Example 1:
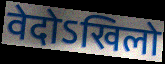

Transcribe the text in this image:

वेदोऽखिलो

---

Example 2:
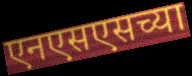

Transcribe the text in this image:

एनएसएसच्या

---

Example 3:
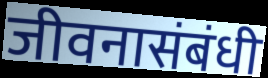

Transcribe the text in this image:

जीवनासंबंधी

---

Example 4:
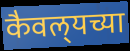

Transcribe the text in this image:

कैवल्यच्या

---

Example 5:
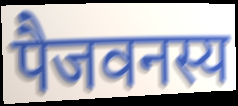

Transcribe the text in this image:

पैजवनस्य